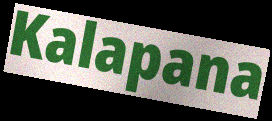
Kalapana